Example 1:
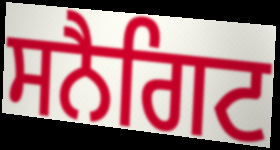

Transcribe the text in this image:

ਸਨੈਗਿਟ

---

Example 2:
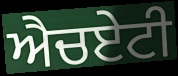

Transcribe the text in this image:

ਐਚਏਟੀ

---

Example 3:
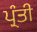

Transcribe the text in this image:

ਪ੍ਰੰਤੀ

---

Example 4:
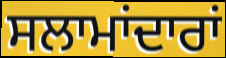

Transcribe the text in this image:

ਸਲਾਮਾਂਦਾਰਾਂ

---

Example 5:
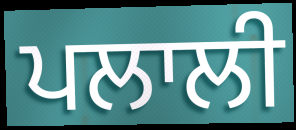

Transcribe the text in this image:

ਪਲਾਲੀ